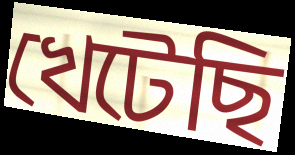
খেটেছি